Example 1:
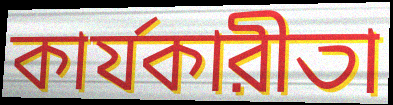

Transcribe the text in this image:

কার্যকারীতা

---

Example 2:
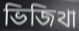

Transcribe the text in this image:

ভিজিথা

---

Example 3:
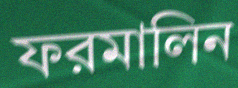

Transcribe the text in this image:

ফরমালিন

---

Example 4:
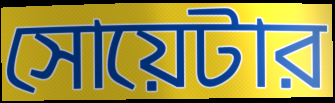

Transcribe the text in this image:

সোয়েটার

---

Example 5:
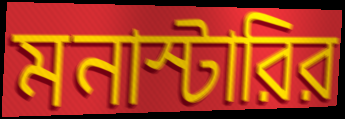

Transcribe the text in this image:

মনাস্টারির